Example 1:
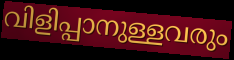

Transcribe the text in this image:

വിളിപ്പാനുള്ളവരും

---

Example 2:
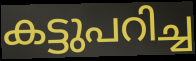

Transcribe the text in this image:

കട്ടുപറിച്ച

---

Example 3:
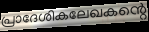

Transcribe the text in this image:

പ്രാദേശികലേഖകന്റെ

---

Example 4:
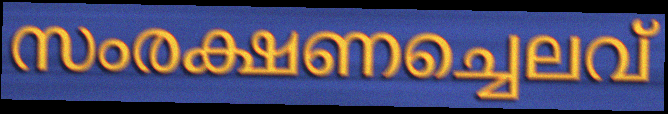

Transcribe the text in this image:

സംരക്ഷണച്ചെലവ്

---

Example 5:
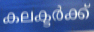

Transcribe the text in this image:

കലക്ടർക്ക്